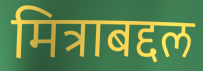
मित्राबद्दल